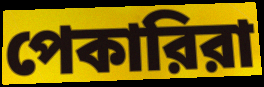
পেকারিরা